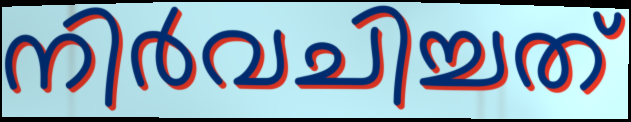
നിർവചിച്ചത്